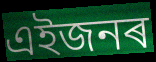
এইজনৰ